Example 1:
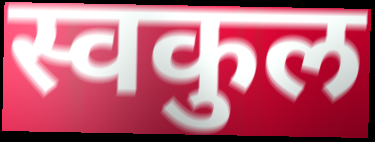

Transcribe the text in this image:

स्वकुल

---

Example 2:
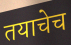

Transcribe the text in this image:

तयाचेच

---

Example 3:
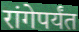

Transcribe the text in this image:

रांगेपर्यंत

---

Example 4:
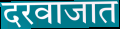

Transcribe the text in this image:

दरवाजात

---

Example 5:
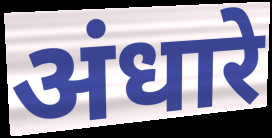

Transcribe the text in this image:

अंधारे